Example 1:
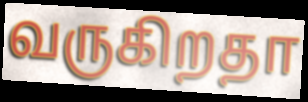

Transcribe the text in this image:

வருகிறதா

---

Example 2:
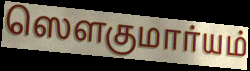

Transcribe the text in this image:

ஸௌகுமார்யம்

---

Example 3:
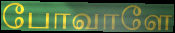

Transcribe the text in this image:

போவாளே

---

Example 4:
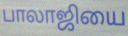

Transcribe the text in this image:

பாலாஜியை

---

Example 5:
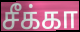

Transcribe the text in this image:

சீக்கா